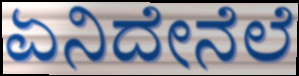
ಏನಿದೇನೆಲೆ